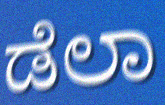
ಡೆಲಾ